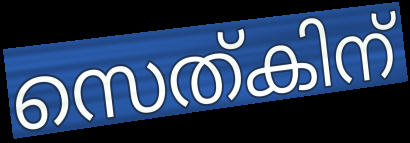
സെത്കിന്